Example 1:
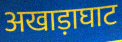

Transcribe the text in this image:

अखाड़ाघाट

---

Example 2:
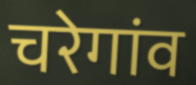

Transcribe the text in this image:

चरेगांव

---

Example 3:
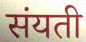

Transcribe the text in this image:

संयती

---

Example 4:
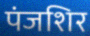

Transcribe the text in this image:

पंजशिर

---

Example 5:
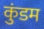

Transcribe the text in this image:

कुंडम